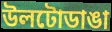
উলটোডাঙা